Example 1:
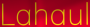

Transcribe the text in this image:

Lahaul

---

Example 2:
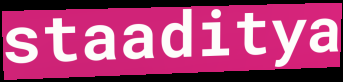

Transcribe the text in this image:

staaditya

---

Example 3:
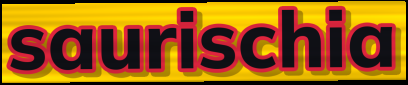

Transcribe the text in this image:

saurischia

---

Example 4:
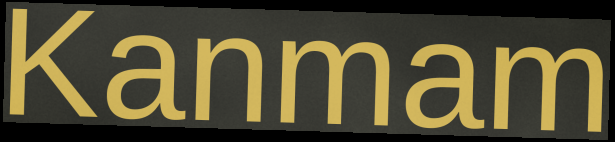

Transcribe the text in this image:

Kanmam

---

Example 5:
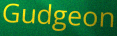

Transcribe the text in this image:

Gudgeon